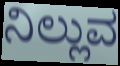
ನಿಲ್ಲುವ